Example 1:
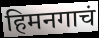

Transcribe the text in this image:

हिमनगाचं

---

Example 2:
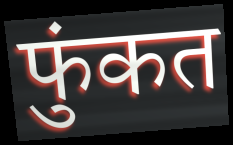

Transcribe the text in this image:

फुंकत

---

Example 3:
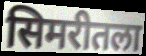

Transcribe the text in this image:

सिमरीतला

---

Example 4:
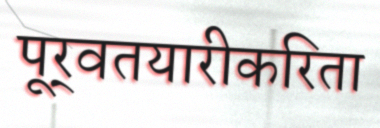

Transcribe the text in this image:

पूर्वतयारीकरिता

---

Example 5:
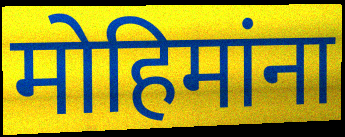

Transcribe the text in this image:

मोहिमांना